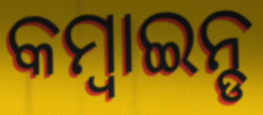
କମ୍ବାଇନ୍ଡ